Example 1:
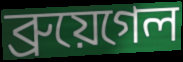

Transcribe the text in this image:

ব্রুয়েগেল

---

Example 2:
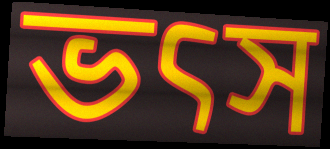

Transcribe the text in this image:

ভৎস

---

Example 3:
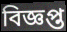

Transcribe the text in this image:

বিজ্ঞপ্ত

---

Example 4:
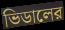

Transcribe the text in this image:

ভিডালের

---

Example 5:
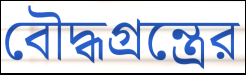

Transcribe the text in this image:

বৌদ্ধগ্রন্ত্রের